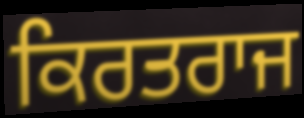
ਕਿਰਤਰਾਜ